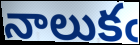
నాలుకఁ